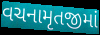
વચનામૃતજીમાં